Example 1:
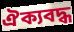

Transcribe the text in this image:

ঐক্যবদ্ধ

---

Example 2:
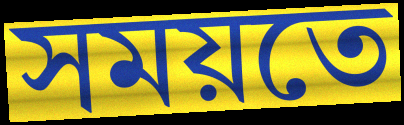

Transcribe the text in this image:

সময়তে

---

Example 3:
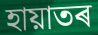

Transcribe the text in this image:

হায়াতৰ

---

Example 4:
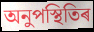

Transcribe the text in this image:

অনুপস্থিতিৰ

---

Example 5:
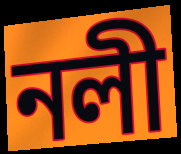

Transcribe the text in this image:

নলী